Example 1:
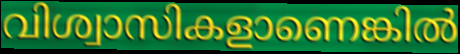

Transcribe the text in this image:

വിശ്വാസികളാണെങ്കിൽ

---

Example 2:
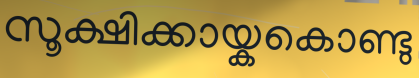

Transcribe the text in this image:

സൂക്ഷിക്കായ്കകൊണ്ടു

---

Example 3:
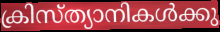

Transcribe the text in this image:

ക്രിസ്ത്യാനികൾക്കു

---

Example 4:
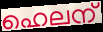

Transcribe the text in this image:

ഹെലന്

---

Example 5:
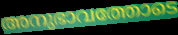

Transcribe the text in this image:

അനുഭാവത്തോടെ